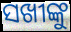
ସଖୀଙ୍କୁ